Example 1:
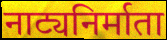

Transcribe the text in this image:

नाट्यनिर्माता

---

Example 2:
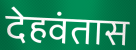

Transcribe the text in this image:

देहवंतास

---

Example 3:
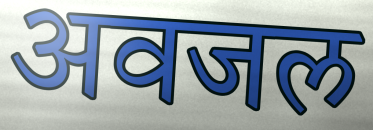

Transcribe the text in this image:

अवजल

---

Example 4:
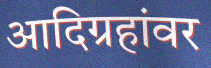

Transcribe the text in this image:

आदिग्रहांवर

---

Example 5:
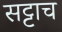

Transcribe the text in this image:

सट्टाच